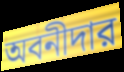
অবনীদার